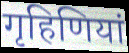
गृहिणियां